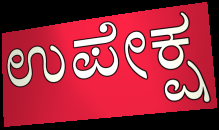
ಉಪೇಕ್ಷ